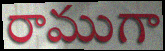
రాముగా